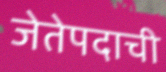
जेतेपदाची